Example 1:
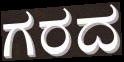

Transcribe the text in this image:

ಗರದ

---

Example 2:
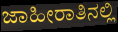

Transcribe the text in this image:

ಜಾಹೀರಾತಿನಲ್ಲಿ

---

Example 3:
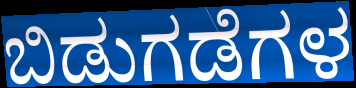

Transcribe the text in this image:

ಬಿಡುಗಡೆಗಳ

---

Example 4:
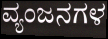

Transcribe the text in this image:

ವ್ಯಂಜನಗಳ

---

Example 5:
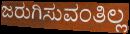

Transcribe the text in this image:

ಜರುಗಿಸುವಂತಿಲ್ಲ